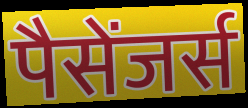
पैसेंजर्स